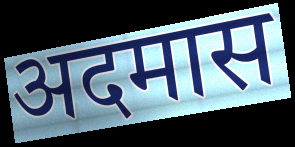
अदमास